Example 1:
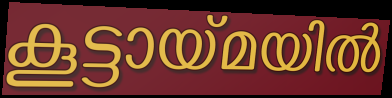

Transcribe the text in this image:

കൂട്ടായ്മയിൽ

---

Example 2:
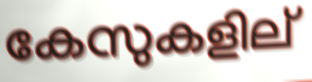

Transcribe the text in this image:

കേസുകളില്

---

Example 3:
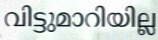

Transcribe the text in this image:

വിട്ടുമാറിയില്ല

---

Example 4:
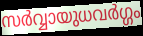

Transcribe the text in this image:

സർവ്വായുധവർഗ്ഗം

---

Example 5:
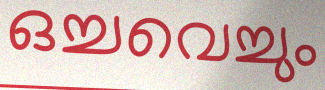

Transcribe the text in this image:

ഒച്ചവെച്ചും